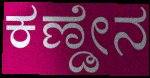
ಕಣ್ಡೇನ